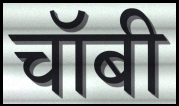
चॉबी